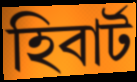
হিবার্ট